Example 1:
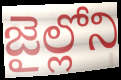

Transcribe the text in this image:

జైల్లోని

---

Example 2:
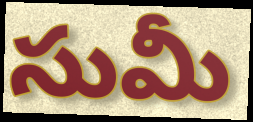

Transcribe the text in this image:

సుమీ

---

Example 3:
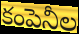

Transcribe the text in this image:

కంపెనీల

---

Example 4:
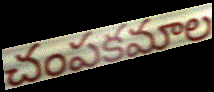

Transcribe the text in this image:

చంపకమాల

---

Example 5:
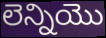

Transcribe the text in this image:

లెన్నియొ